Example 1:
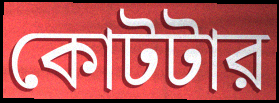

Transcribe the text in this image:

কোটটার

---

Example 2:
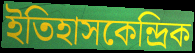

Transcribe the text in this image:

ইতিহাসকেন্দ্রিক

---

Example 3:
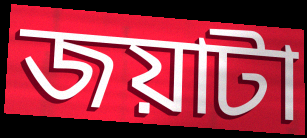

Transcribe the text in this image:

জয়াটা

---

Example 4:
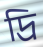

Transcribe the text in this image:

দ্রি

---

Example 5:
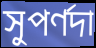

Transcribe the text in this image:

সুপর্ণদা